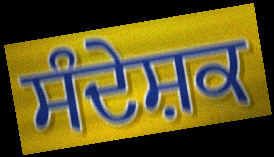
ਸੰਦੇਸ਼ਕ